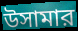
উসামার